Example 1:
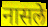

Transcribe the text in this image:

नासले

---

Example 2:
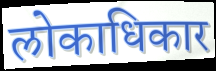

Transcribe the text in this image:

लोकाधिकार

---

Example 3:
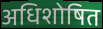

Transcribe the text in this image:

अधिशोषित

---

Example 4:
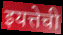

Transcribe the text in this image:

इयत्तेची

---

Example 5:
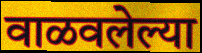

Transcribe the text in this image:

वाळवलेल्या